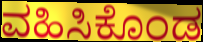
ವಹಿಸಿಕೊಂಡ